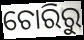
ଚୋରିରୁ